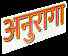
अनुरागा